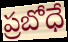
ప్రబోధే